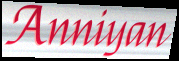
Anniyan